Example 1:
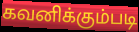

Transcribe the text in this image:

கவனிக்கும்படி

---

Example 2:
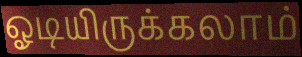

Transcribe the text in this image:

ஓடியிருக்கலாம்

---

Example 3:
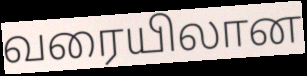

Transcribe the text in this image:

வரையிலான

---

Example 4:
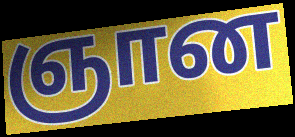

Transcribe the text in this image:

ஞான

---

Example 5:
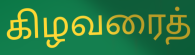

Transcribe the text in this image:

கிழவரைத்